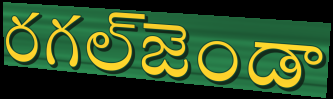
రగల్‌జెండా